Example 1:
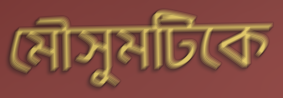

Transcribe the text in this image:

মৌসুমটিকে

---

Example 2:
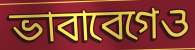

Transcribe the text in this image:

ভাবাবেগেও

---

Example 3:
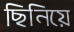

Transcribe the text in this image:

ছিনিয়ে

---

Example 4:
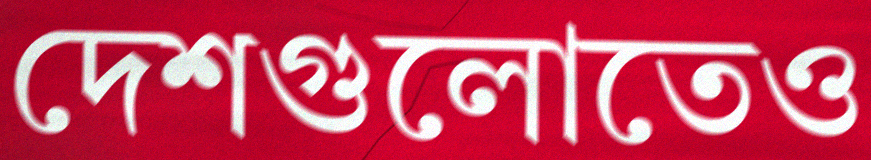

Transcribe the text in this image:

দেশগুলোতেও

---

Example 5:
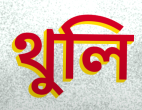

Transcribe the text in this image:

থুলি